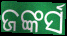
ଜଙ୍କର୍ସ